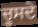
ਚੂਸਦੇ